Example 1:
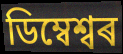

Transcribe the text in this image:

ডিম্বেশ্বৰ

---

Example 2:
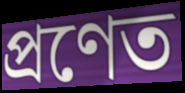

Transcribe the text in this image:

প্ৰণেত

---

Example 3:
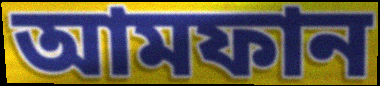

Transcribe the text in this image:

আমফান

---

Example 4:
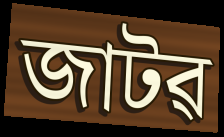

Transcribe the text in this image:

জাটৱ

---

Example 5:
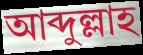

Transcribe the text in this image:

আব্দুল্লাহ